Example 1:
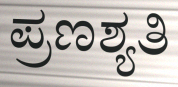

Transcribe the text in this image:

ಪ್ರಣಶ್ಯತಿ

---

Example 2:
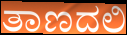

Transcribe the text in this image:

ತಾಣದಲಿ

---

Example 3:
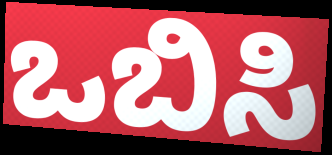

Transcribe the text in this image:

ಒಬಿಸಿ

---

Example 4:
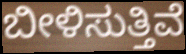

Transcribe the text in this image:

ಬೀಳಿಸುತ್ತಿವೆ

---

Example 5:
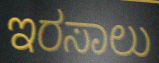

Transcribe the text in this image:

ಇರಸಾಲು